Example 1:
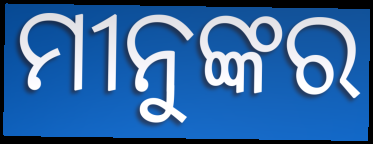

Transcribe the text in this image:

ମୀନୁଙ୍କର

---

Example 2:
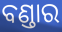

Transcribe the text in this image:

ବଣ୍ଡାର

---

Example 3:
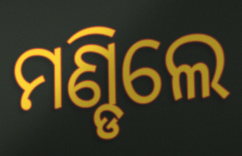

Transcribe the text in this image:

ମଣ୍ଡିଲେ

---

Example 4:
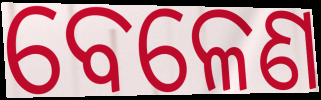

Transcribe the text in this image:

ବେଳେଣ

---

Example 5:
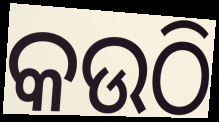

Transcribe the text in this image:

କଉଠି